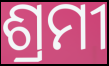
ଶ୍ରମୀ